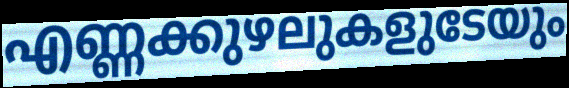
എണ്ണക്കുഴലുകളുടേയും